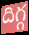
దిగ్గ